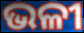
ଭଳୀ